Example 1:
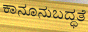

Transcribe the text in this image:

ಕಾನೂನುಬದ್ಧತೆ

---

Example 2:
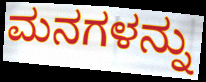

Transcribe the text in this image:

ಮನಗಳನ್ನು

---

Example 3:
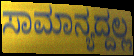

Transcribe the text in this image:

ಸಾಮಾನ್ಯದ್ದಲ್ಲ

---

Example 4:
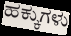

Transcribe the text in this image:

ಹಕ್ಕುಗಳು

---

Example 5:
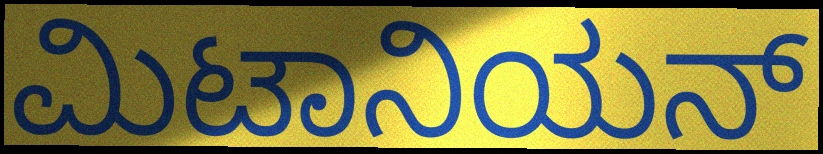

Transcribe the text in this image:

ಮಿಟಾನಿಯನ್